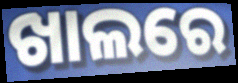
ଖାଲରେ